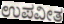
ಉಪವೀತ